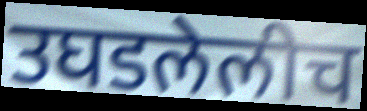
उघडलेलीच